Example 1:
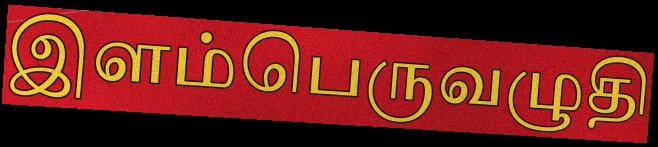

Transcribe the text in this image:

இளம்பெருவழுதி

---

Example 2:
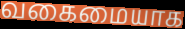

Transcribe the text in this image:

வகைமையாக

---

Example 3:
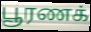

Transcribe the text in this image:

பூரணக்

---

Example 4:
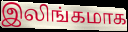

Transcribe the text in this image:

இலிங்கமாக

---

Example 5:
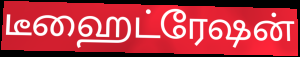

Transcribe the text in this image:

டீஹைட்ரேஷன்